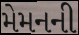
મેમનની